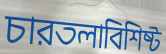
চারতলাবিশিষ্ট